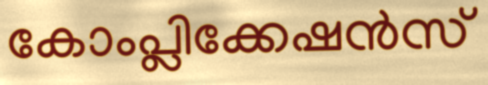
കോംപ്ലിക്കേഷൻസ്